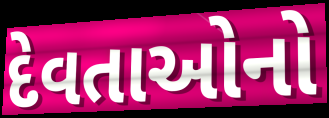
દેવતાઓનો